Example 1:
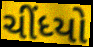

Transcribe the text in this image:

ચીંધ્યો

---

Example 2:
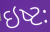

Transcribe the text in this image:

ઇષ્ટઃ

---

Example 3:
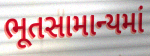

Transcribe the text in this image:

ભૂતસામાન્યમાં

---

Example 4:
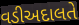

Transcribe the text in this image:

વડીઅદાલતે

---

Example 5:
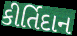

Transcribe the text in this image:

કીર્તિદાન